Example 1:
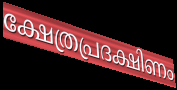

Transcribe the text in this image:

ക്ഷേത്രപ്രദക്ഷിണം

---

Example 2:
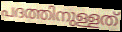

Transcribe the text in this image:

പദത്തിനുള്ളത്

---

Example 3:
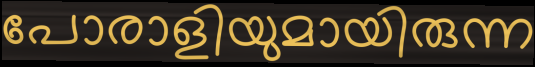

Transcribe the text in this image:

പോരാളിയുമായിരുന്ന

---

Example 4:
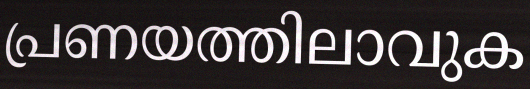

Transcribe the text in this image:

പ്രണയത്തിലാവുക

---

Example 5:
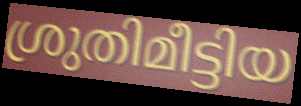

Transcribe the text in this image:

ശ്രുതിമീട്ടിയ